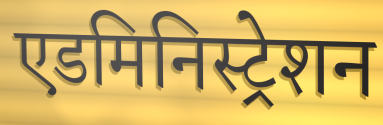
एडमिनिस्ट्रेशन